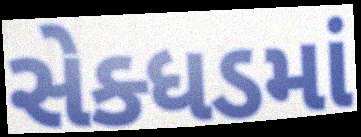
સેક્ધડમાં